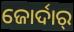
ଜୋର୍ଦାର୍